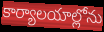
కార్యాలయాల్లోను